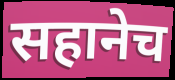
सहानेच